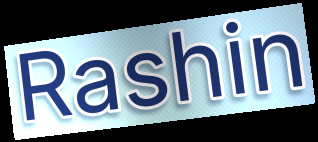
Rashin